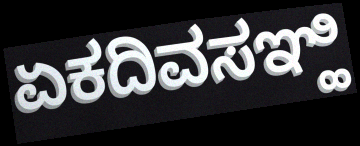
ಏಕದಿವಸಞ್ಹಿ